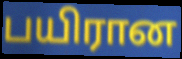
பயிரான